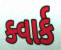
ક્વાર્ક